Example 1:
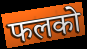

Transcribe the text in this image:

फलको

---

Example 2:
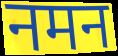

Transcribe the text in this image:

नमन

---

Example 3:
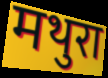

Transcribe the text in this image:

मथुरा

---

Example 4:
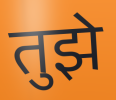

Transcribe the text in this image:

तुझे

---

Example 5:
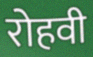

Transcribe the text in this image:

रोहवी